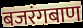
बजरंगबाण